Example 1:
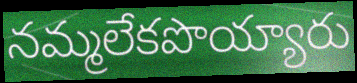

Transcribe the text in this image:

నమ్మలేకపొయ్యారు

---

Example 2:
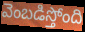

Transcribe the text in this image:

వెంబడిస్తోంది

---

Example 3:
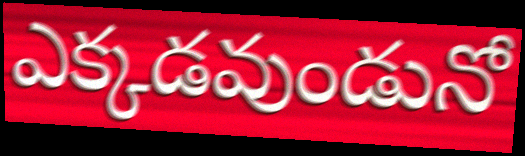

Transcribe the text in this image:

ఎక్కడవుండునో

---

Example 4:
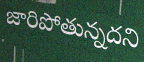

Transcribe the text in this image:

జారిపోతున్నదని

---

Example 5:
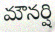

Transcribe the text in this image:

మౌనర్షి